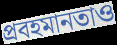
প্রবহমানতাও